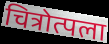
चित्रोत्पला